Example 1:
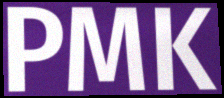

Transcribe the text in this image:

PMK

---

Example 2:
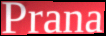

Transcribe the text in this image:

Prana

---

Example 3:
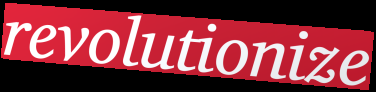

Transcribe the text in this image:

revolutionize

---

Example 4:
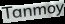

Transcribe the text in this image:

Tanmoy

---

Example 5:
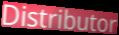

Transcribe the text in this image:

Distributor